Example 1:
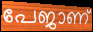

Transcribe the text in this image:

പേജാണ്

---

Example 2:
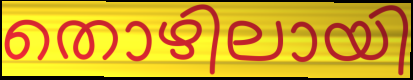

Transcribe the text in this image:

തൊഴിലായി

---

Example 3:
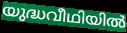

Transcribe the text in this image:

യുദ്ധവീഥിയിൽ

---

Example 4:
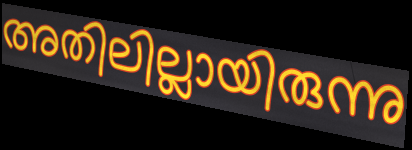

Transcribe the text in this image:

അതിലില്ലായിരുന്നു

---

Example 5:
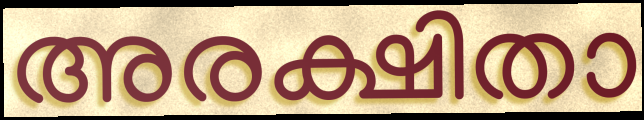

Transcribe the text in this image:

അരക്ഷിതാ